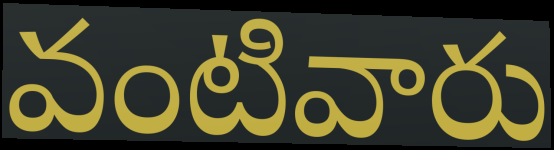
వంటివారు